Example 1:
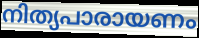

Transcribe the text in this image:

നിത്യപാരായണം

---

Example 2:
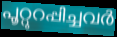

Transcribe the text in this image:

പൂറ്റുറപ്പിച്ചവർ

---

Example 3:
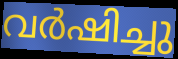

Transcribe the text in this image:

വർഷിച്ചു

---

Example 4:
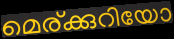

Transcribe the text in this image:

മെര്ക്കുറിയോ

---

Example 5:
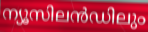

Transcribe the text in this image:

ന്യൂസിലൻഡിലും